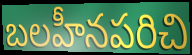
బలహీనపరిచి